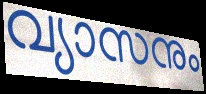
വ്യാസനും